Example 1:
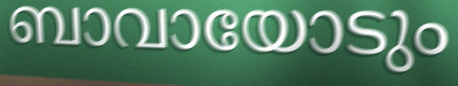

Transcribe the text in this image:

ബാവായോടും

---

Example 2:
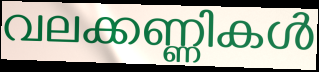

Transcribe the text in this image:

വലക്കണ്ണികൾ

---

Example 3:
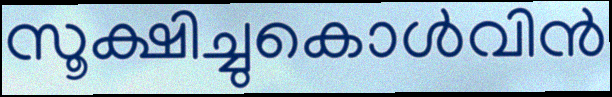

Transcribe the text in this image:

സൂക്ഷിച്ചുകൊൾവിൻ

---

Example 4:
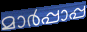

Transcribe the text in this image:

മാർപ്പാപ്പ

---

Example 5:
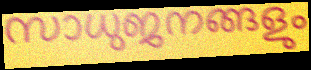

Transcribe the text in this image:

സാധുജനങ്ങളും